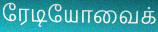
ரேடியோவைக்